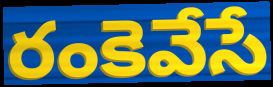
రంకెవేసే